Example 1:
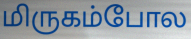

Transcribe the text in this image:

மிருகம்போல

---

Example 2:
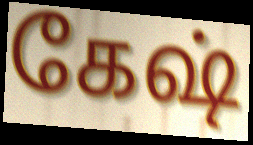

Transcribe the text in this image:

கேஷ்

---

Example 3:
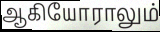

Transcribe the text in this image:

ஆகியோராலும்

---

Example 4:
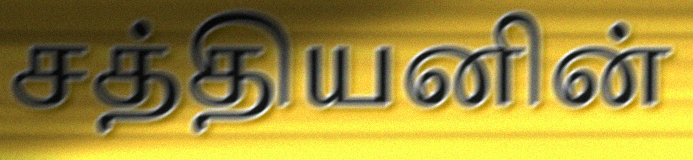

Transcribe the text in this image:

சத்தியனின்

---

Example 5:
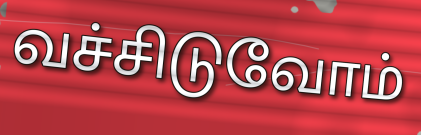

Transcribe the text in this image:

வச்சிடுவோம்